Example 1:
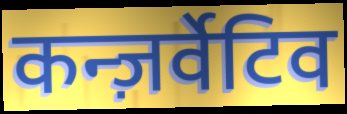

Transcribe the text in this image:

कन्ज़र्वेटिव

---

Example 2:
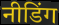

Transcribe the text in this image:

नीडिंग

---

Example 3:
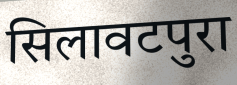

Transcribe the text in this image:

सिलावटपुरा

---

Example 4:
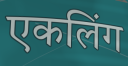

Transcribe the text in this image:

एकलिंग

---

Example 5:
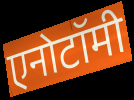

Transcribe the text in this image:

एनोटॉमी